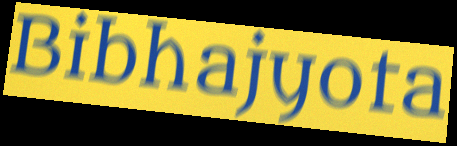
Bibhajyota